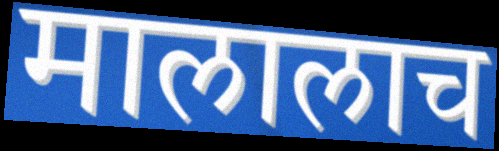
मालालाच